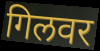
गिलवर